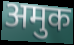
अमुक